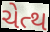
ચેત્થ